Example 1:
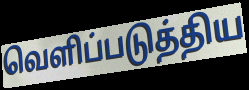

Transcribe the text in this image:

வெளிப்படுத்திய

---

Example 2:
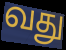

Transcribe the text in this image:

வது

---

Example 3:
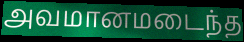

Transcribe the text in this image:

அவமானமடைந்த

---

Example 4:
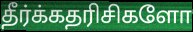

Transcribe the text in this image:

தீர்க்கதரிசிகளோ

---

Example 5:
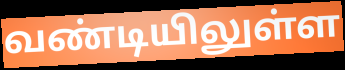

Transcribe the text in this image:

வண்டியிலுள்ள